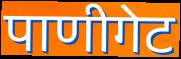
पाणीगेट